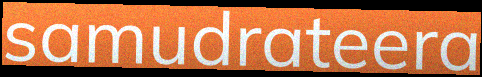
samudrateera